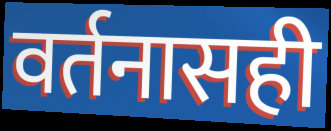
वर्तनासही